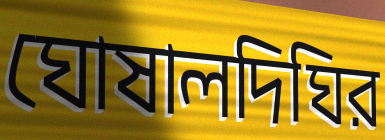
ঘোষালদিঘির